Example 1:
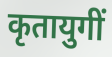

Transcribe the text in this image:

कृतायुगीं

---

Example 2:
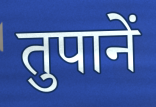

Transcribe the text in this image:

तुपानें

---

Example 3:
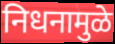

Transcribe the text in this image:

निधनामुळे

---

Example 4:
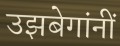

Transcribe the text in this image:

उझबेगांनीं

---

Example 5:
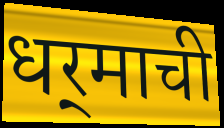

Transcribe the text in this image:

धर्माची